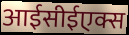
आईसीईएक्स